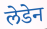
लेडेन